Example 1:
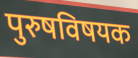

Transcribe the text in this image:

पुरुषविषयक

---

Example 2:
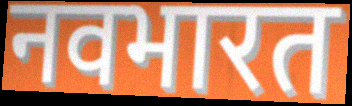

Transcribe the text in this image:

नवभारत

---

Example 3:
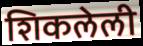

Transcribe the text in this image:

शिकलेली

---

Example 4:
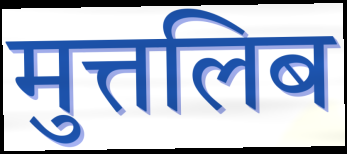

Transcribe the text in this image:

मुत्तलिब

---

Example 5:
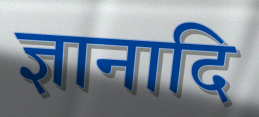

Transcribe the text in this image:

ज्ञानादि